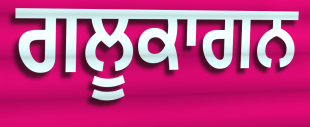
ਗਲੂਕਾਗਨ